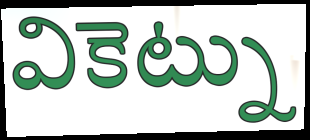
వికెట్ను